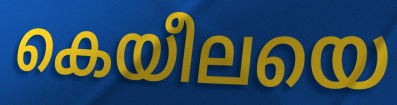
കെയീലയെ